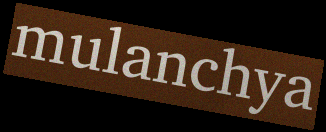
mulanchya